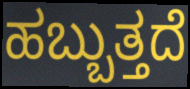
ಹಬ್ಬುತ್ತದೆ